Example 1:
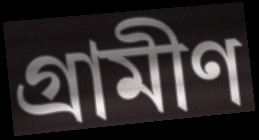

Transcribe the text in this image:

গ্রামীণ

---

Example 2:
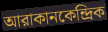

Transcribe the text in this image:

আরাকানকেন্দ্রিক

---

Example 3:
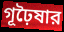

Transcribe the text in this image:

গূঢ়ৈষার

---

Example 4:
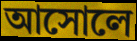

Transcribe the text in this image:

আসোলে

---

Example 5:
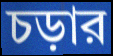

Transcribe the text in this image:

চড়ার